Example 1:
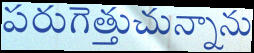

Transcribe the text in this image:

పరుగెత్తుచున్నాను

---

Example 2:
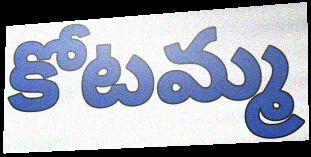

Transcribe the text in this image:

కోటమ్మ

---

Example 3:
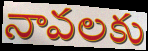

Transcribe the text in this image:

నావలకు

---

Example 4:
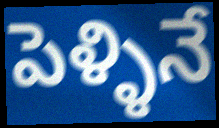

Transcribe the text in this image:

పెళ్ళినే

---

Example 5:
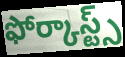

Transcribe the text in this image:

ఫోర్కాస్ట్స్